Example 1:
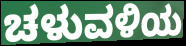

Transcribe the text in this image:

ಚಳುವಳಿಯ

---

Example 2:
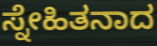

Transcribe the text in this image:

ಸ್ನೇಹಿತನಾದ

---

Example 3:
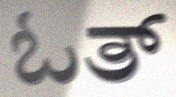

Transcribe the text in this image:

ಓತ್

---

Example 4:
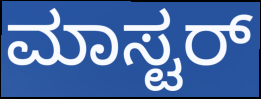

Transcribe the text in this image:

ಮಾಸ್ಟರ್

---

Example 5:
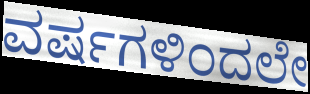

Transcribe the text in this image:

ವರ್ಷಗಳಿಂದಲೇ